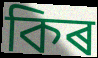
কিৰ